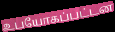
உபயோகப்பட்டன